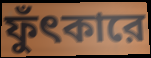
ফুঁৎকারে